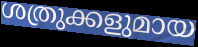
ശത്രുക്കളുമായ